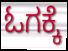
ಓಗಕ್ಕೆ